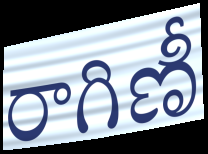
రాగిణీ